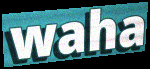
waha